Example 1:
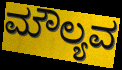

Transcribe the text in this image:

ಮೌಲ್ಯವ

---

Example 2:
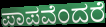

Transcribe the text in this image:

ಪಾಪವೆಂದರೆ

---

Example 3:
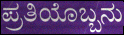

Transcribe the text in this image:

ಪ್ರತಿಯೊಬ್ಬನು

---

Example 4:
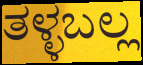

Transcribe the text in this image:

ತಳ್ಳಬಲ್ಲ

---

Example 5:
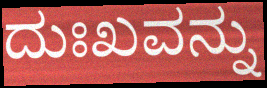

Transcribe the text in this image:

ದುಃಖವನ್ನು